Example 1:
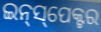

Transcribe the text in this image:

ଇନ୍‍ସ୍‌ପେକ୍ଟର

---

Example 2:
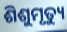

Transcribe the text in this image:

ଶିଶୁମୃତ୍ୟୁ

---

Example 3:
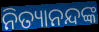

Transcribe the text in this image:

ନିତ୍ୟାନନ୍ଦଙ୍କ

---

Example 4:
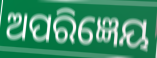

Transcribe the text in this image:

ଅପରିଜ୍ଞେୟ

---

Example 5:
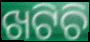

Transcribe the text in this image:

ଖଟିଚି